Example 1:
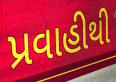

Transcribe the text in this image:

પ્રવાહીથી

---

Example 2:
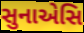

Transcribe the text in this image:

સુનાએસિ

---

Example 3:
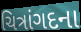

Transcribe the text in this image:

ચિત્રાંગદના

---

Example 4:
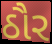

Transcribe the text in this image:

ઠૌર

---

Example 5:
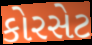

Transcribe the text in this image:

કોરસેટ